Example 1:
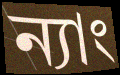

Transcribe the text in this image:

ন্যাং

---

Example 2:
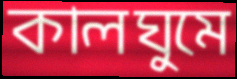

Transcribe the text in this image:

কালঘুমে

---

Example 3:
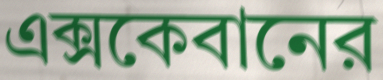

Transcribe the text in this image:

এক্সকেবানের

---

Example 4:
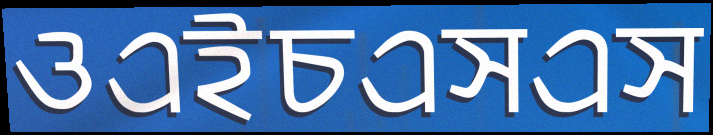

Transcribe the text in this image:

ওএইচএসএস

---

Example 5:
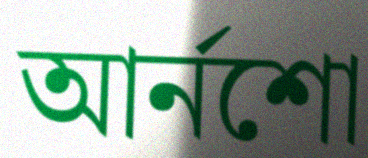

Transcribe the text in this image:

আর্নশো